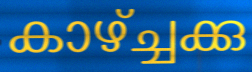
കാഴ്ച്ചക്കു